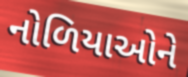
નોળિયાઓને